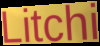
Litchi